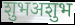
शुभअशुभ